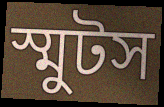
স্মুটস